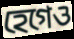
হেগেও